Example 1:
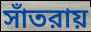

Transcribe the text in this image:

সাঁতরায়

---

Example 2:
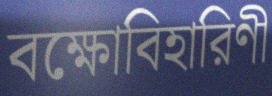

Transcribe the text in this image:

বক্ষোবিহারিণী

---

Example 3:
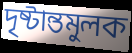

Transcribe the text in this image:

দৃষ্টান্তমুলক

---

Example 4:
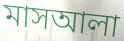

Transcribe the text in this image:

মাসআলা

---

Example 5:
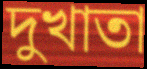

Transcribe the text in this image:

দুখাতা